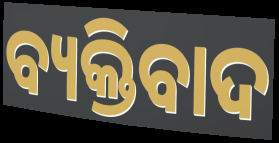
ବ୍ୟକ୍ତିବାଦ